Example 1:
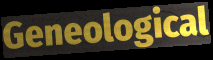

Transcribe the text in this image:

Geneological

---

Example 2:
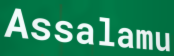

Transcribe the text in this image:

Assalamu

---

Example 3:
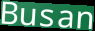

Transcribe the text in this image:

Busan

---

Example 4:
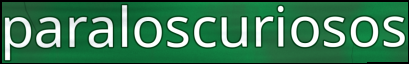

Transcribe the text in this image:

paraloscuriosos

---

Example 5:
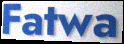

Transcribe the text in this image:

Fatwa